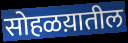
सोहळय़ातील